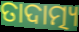
ତାଦାତ୍ମ୍ୟ